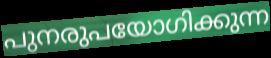
പുനരുപയോഗിക്കുന്ന